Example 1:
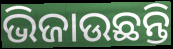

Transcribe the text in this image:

ଭିଜାଉଛନ୍ତି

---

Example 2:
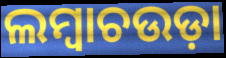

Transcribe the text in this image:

ଲମ୍ବାଚଉଡ଼ା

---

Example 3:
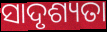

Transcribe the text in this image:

ସାଦୃଶ୍ୟତା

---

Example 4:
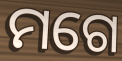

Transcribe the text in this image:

ମଗେ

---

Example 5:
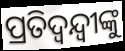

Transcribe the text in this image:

ପ୍ରତିଦ୍ବନ୍ଦ୍ବୀଙ୍କୁ